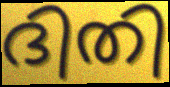
ദിതി